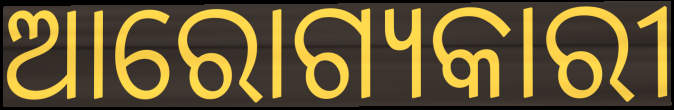
ଆରୋଗ୍ୟକାରୀ